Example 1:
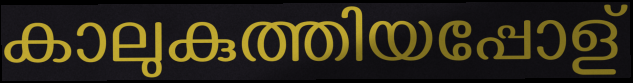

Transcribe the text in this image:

കാലുകുത്തിയപ്പോള്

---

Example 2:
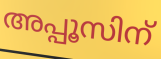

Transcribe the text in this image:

അപ്പൂസിന്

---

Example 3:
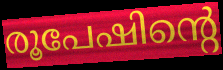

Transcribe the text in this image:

രൂപേഷിന്റെ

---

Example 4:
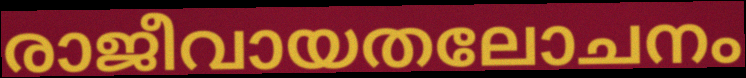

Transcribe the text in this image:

രാജീവായതലോചനം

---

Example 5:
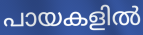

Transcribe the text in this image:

പായകളിൽ